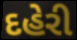
દહેરી